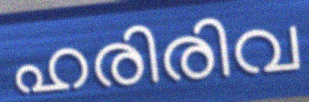
ഹരിരിവ